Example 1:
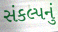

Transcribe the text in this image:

સંકલ્પનું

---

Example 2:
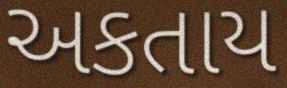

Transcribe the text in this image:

અકતાય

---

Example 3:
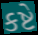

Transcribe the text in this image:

કષ્ટે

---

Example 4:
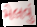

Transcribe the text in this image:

મેલવું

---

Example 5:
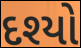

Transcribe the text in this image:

દશ્યો